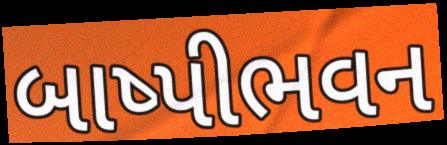
બાષ્પીભવન